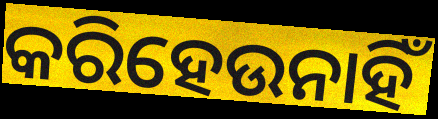
କରିହେଉନାହିଁ